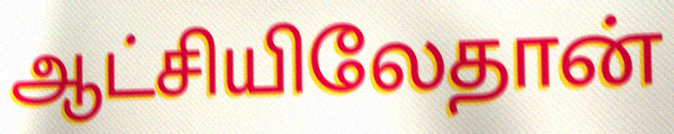
ஆட்சியிலேதான்